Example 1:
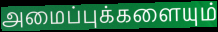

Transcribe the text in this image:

அமைப்புக்களையும்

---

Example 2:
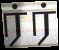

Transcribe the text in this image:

ர்ர்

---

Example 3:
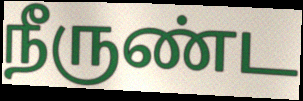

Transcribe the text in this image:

நீருண்ட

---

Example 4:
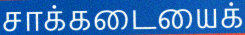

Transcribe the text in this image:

சாக்கடையைக்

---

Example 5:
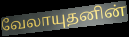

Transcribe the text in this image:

வேலாயுதனின்